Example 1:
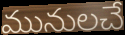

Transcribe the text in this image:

మునులచే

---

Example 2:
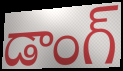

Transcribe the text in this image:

డాంగ్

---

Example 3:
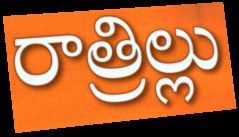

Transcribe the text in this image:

రాత్రిల్లు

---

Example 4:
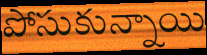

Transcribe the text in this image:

పోసుకున్నాయి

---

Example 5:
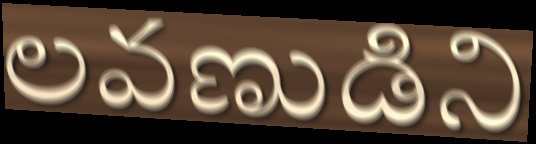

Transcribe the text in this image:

లవణుడిని